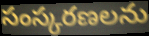
సంస్కరణలను